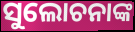
ସୁଲୋଚନାଙ୍କ